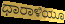
ಧಾರಾಳಿಯೂ